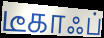
டீகாஃப்